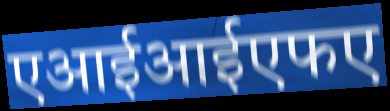
एआईआईएफए